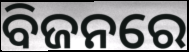
ବିଜନରେ